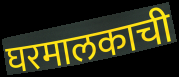
घरमालकाची